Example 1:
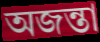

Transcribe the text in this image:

অজন্তা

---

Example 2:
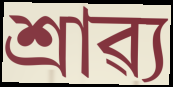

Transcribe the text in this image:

শ্ৰাৱ্য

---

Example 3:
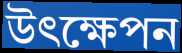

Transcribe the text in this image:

উৎক্ষেপন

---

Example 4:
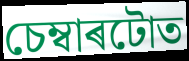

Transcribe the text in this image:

চেম্বাৰটোত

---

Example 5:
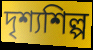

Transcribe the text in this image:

দৃশ্যশিল্প